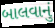
બાલવાનું